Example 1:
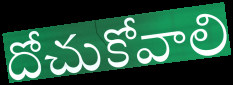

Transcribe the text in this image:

దోచుకోవాలి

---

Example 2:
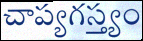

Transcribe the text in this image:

చాప్యగస్త్యం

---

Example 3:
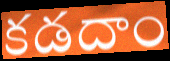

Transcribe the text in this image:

కడదాం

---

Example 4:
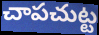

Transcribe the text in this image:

చాపచుట్ట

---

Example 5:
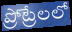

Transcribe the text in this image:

ప్రోట్రేలలో